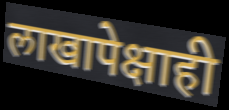
लाखापेक्षाही